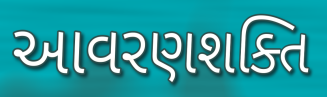
આવરણશક્તિ